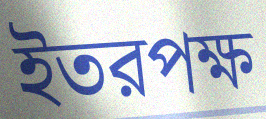
ইতরপক্ষ